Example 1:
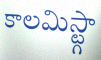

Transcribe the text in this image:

కాలమిస్ట్గా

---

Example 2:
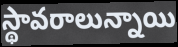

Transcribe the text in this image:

స్థావరాలున్నాయి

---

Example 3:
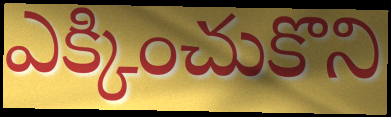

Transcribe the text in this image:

ఎక్కించుకొని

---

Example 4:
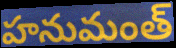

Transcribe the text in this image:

హనుమంత్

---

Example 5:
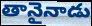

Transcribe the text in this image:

తానైనాడు